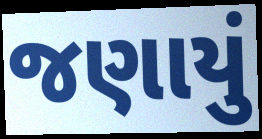
જણાયું